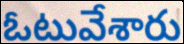
ఓటువేశారు